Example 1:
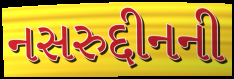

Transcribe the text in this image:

નસરુદ્દીનની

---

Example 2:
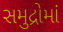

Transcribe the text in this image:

સમુદ્રોમાં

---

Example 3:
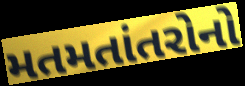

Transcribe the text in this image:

મતમતાંતરોનો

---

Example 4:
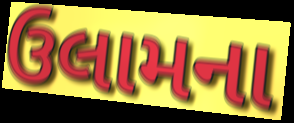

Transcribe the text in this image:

ઉલામના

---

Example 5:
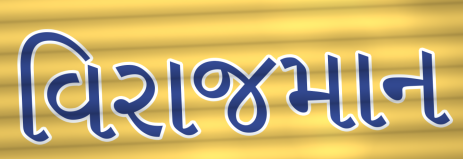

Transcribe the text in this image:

વિરાજમાન